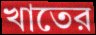
খাতের